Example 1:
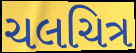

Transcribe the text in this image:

ચલચિત્ર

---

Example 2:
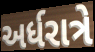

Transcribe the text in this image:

અર્ધરાત્રે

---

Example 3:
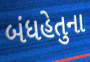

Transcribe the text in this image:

બંધહેતુના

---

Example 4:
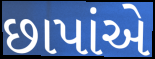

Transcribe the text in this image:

છાપાંએ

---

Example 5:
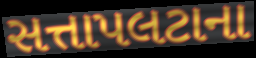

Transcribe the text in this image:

સત્તાપલટાના